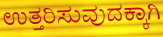
ಉತ್ತರಿಸುವುದಕ್ಕಾಗಿ